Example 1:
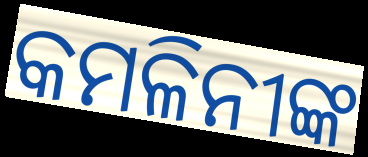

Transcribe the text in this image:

କମଳିନୀଙ୍କ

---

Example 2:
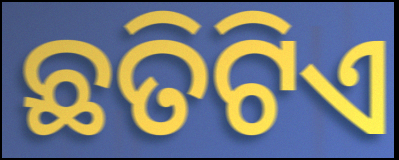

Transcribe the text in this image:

ଛତିଟିଏ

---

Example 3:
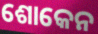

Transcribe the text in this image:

ଶୋକେନ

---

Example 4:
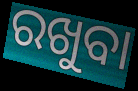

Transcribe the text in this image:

ରଖୁବା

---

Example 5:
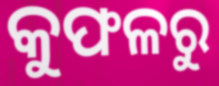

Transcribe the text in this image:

କୁଫଳରୁ